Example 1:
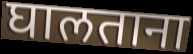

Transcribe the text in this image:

घालताना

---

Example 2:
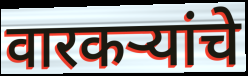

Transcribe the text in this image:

वारकऱ्यांचे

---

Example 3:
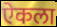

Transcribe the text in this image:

ऐकला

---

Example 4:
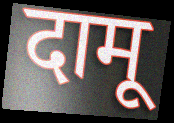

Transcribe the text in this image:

दामू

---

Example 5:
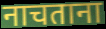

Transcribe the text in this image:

नाचताना